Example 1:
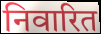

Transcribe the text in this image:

निवारित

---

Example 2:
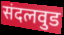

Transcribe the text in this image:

संदलवुड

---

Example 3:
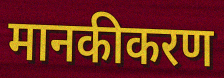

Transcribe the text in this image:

मानकीकरण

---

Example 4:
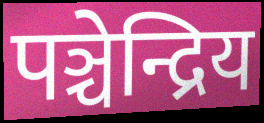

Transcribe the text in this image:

पञ्चेन्द्रिय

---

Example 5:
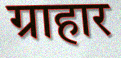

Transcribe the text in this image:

ग्राहार